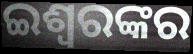
ଇଶ୍ୱରଙ୍କର